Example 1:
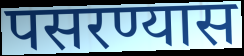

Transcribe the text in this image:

पसरण्यास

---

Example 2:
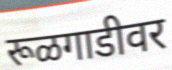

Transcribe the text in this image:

रूळगाडीवर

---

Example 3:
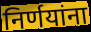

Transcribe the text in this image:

निर्णयांना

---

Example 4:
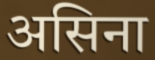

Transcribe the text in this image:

असिना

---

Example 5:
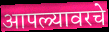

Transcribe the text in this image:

आपल्यावरचे